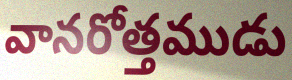
వానరోత్తముడు